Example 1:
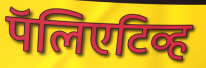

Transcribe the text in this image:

पॅलिएटिव्ह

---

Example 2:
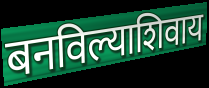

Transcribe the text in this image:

बनविल्याशिवाय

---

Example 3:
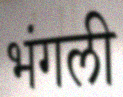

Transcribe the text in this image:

भंगली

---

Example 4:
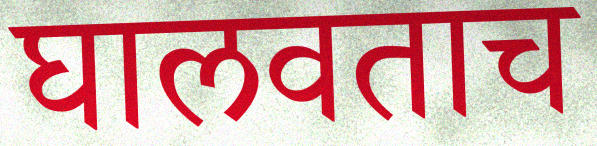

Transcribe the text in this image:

घालवताच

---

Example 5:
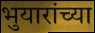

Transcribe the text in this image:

भुयारांच्या